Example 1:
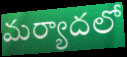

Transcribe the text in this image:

మర్యాదలో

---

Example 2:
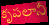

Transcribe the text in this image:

కృపలానీ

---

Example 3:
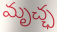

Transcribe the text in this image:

మృచ్ఛ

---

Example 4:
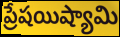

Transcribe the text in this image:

ప్రేషయిష్యామి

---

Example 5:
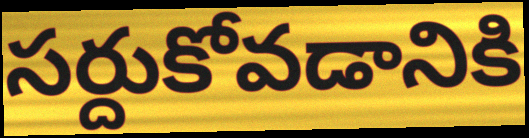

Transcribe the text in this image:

సర్దుకోవడానికి